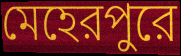
মেহেরপুরে